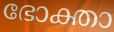
ഭോക്താ